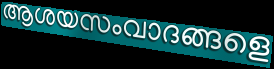
ആശയസംവാദങ്ങളെ